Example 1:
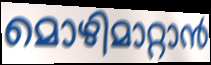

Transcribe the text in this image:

മൊഴിമാറ്റാൻ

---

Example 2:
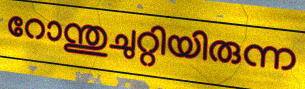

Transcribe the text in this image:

റോന്തുചുറ്റിയിരുന്ന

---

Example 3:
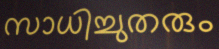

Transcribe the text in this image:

സാധിച്ചുതരും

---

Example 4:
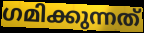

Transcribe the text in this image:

ഗമിക്കുന്നത്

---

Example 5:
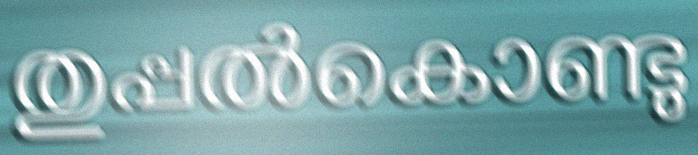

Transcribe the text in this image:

തുപ്പൽകൊണ്ടു